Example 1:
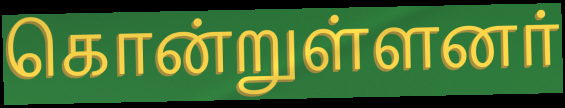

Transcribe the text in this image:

கொன்றுள்ளனர்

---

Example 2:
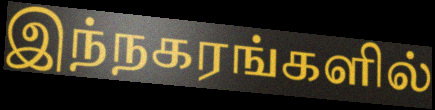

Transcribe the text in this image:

இந்நகரங்களில்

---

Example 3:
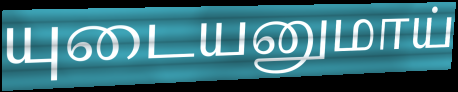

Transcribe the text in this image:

யுடையனுமாய்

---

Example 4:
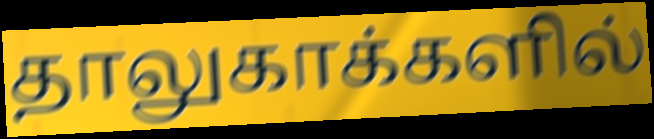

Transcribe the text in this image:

தாலுகாக்களில்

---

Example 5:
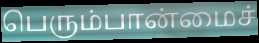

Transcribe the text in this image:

பெரும்பான்மைச்